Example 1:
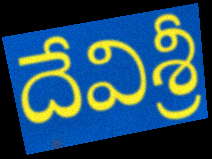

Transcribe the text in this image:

దేవిశ్రీ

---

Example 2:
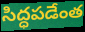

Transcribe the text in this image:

సిద్ధపడేంత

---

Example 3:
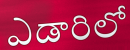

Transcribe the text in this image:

ఎడారిలో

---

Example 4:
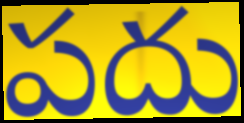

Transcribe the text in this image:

పదు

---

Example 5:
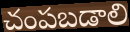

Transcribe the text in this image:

చంపబడాలి